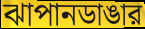
ঝাপানডাঙার